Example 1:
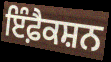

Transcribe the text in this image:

ਇੰਫ਼ੈਕਸ਼ਨ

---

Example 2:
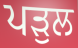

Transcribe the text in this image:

ਪੜੁਲ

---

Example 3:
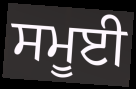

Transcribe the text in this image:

ਸਮੂਈ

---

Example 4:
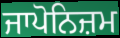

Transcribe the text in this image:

ਜਾਪੋਨਿਜ਼ਮ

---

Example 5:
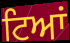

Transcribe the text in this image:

ਟਿਆਂ